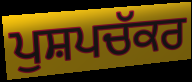
ਪੁਸ਼ਪਚੱਕਰ